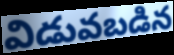
విడువబడిన